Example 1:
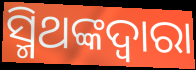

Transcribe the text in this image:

ସ୍ମିଥଙ୍କଦ୍ୱାରା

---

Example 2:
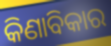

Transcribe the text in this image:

କିଣାବିକାର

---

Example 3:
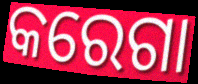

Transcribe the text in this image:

କରେଗା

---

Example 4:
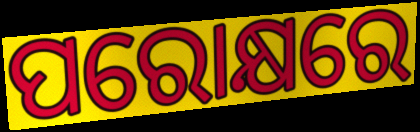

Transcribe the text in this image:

ପରୋକ୍ଷରେ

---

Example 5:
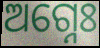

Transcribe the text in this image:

ଅଗ୍ନେଃ